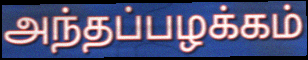
அந்தப்பழக்கம்